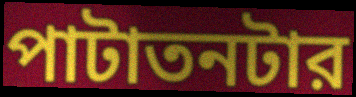
পাটাতনটার